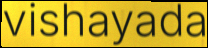
vishayada